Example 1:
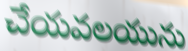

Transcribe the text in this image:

చేయవలయును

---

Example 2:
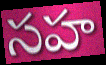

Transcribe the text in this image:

సహ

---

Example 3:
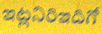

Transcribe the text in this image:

ఇట్లనిరిఇదిగో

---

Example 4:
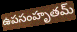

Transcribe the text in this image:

ఉపసంహృతమ్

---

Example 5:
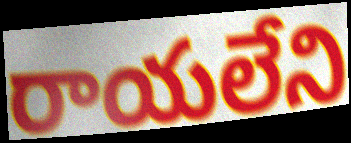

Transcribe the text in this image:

రాయలేని